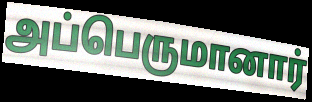
அப்பெருமானார்